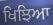
ਖਿਝਿਆ